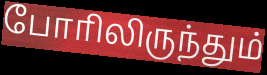
போரிலிருந்தும்